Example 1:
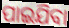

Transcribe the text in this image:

ପାଇଯିବା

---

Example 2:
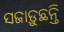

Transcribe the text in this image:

ସଜାଡ଼ୁଛନ୍ତି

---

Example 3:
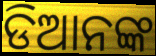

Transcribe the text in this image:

ଡିଆନଙ୍କ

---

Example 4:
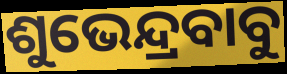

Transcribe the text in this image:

ଶୁଭେନ୍ଦ୍ରବାବୁ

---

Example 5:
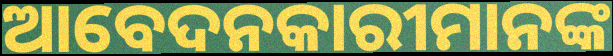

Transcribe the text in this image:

ଆବେଦନକାରୀମାନଙ୍କ